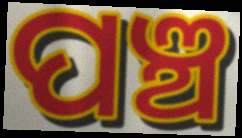
ପଞ୍ଚ